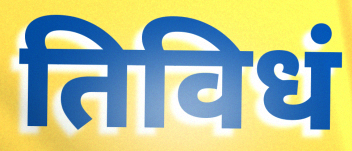
तिविधं